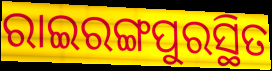
ରାଇରଙ୍ଗପୁରସ୍ଥିତ